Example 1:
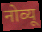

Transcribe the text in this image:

नोव्यू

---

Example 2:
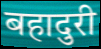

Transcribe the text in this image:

बहादुरी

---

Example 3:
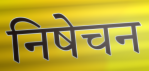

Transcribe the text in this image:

निषेचन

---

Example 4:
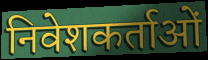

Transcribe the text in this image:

निवेशकर्ताओं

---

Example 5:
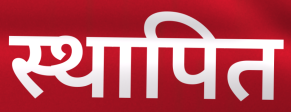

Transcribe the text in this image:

स्थापित